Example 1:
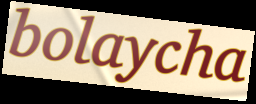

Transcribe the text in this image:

bolaycha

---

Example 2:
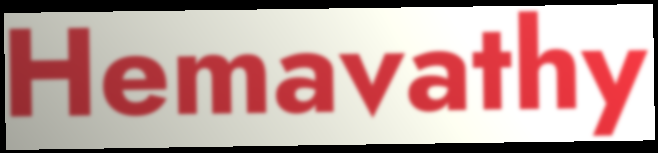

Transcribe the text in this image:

Hemavathy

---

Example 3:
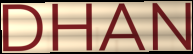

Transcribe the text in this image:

DHAN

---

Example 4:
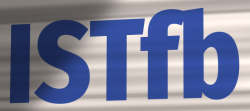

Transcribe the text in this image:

ISTfb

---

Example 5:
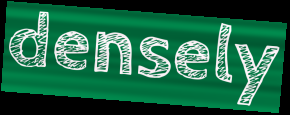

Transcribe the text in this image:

densely